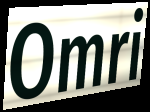
Omri